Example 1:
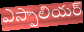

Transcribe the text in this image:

ఎస్పాలియర్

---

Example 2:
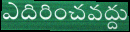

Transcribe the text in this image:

ఎదిరించవద్దు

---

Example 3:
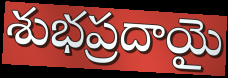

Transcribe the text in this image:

శుభప్రదాయై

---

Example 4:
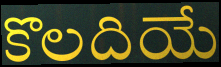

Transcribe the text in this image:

కొలదియే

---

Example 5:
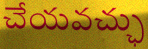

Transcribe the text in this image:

చేయవచ్ఛు